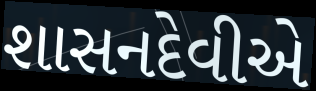
શાસનદેવીએ